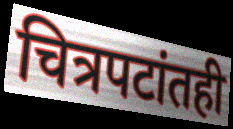
चित्रपटांतही